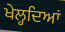
ਖੇਲ੍ਹਦਿਆਂ